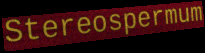
Stereospermum